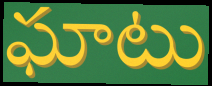
ఘాటు